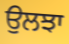
ਉਲਝਾ